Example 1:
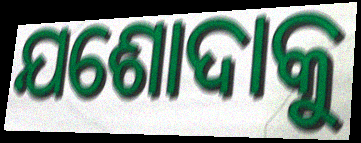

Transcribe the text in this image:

ଯଶୋଦାକୁ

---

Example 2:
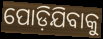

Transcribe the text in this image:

ପୋଡ଼ିଯିବାକୁ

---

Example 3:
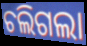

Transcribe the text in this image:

ଚଲିଗଲା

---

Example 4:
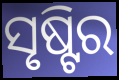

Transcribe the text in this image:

ସୃଷ୍ଟିର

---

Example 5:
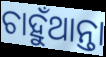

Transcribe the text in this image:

ଚାହୁଁଥାନ୍ତା